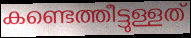
കണ്ടെത്തീട്ടുള്ളത്